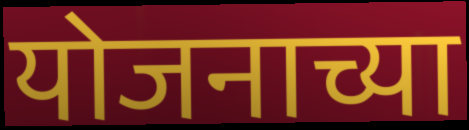
योजनाच्या